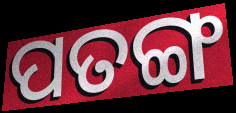
ପତଙ୍ଗ